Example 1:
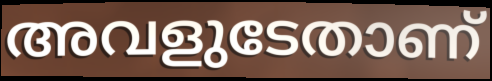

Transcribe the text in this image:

അവളുടേതാണ്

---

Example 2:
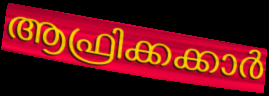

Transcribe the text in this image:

ആഫ്രിക്കക്കാർ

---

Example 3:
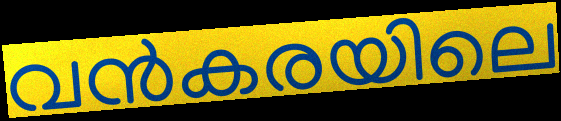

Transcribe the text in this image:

വൻകരയിലെ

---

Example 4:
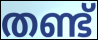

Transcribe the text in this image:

തണ്ട്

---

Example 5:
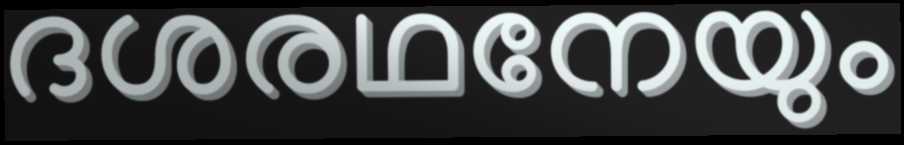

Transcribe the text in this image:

ദശരഥനേയും